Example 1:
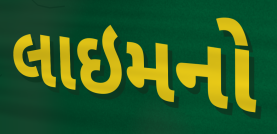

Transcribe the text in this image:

લાઇમનો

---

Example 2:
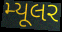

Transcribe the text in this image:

મ્યૂલર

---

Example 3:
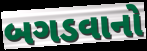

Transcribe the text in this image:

બગડવાનો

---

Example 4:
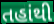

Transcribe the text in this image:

તહાંથી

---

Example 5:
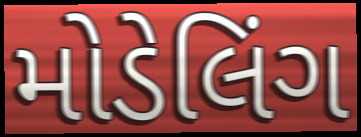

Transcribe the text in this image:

મોડેલિંગ